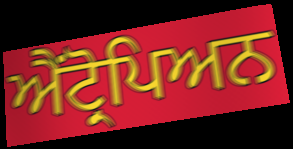
ਐਂਟ੍ਰੋਪਿਅਨ